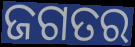
ଜଗତର